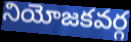
నియోజకవర్గ